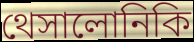
থেসালোনিকি